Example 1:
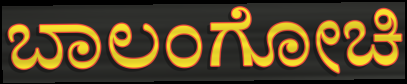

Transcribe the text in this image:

ಬಾಲಂಗೋಚಿ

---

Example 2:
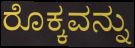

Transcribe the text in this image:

ರೊಕ್ಕವನ್ನು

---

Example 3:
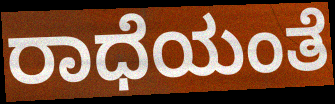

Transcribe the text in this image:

ರಾಧೆಯಂತೆ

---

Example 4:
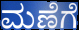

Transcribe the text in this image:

ಮಣೆಗೆ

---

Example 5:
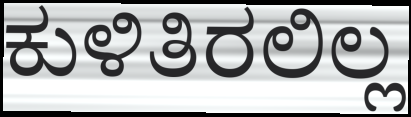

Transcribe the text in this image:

ಕುಳಿತಿರಲಿಲ್ಲ